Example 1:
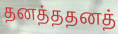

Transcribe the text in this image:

தனத்ததனத்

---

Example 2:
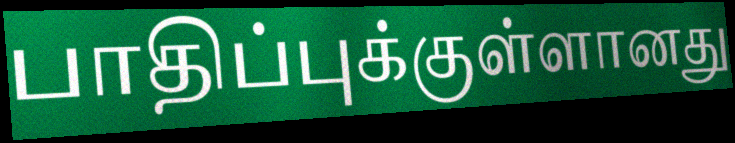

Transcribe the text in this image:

பாதிப்புக்குள்ளானது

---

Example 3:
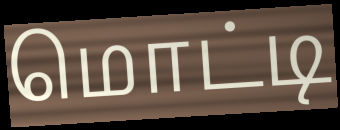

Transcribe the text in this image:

மொட்டி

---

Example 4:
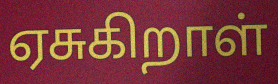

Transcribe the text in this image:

ஏசுகிறாள்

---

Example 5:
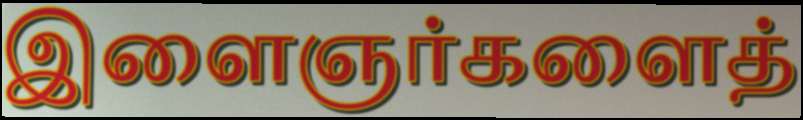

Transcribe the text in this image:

இளைஞர்களைத்